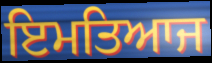
ਇਮਤਿਆਜ